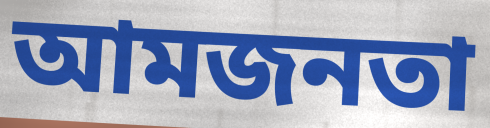
আমজনতা